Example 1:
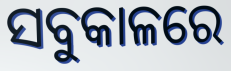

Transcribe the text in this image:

ସବୁକାଳରେ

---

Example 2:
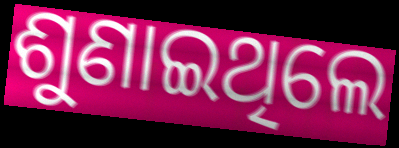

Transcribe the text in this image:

ଶୁଣାଇଥିଲେ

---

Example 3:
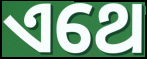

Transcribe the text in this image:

ଏଥେ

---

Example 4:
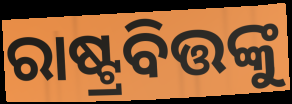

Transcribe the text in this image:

ରାଷ୍ଟ୍ରବିତ୍ତଙ୍କୁ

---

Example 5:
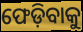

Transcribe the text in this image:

ଫେଡ଼ିବାକୁ